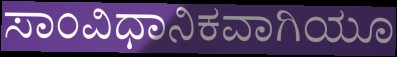
ಸಾಂವಿಧಾನಿಕವಾಗಿಯೂ